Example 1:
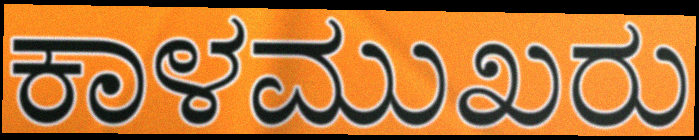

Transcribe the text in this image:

ಕಾಳಮುಖರು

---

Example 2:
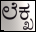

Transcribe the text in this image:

ಲೆಕ್ಖ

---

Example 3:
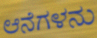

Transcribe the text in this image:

ಆನೆಗಳನು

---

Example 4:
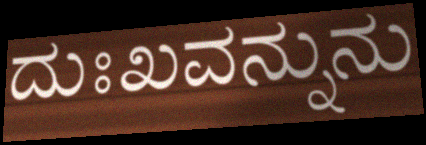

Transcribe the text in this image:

ದುಃಖವನ್ನುನು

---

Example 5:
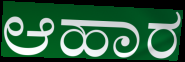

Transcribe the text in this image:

ಆಹಾರ